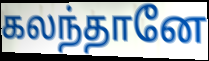
கலந்தானே